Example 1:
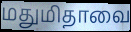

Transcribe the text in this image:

மதுமிதாவை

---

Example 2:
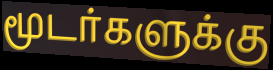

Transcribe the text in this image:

மூடர்களுக்கு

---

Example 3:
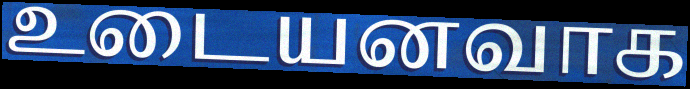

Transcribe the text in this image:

உடையனவாக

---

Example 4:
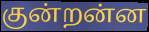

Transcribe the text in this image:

குன்றன்ன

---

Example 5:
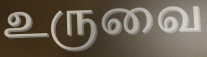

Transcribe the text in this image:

உருவை